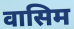
वासिम